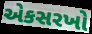
એકસરખો